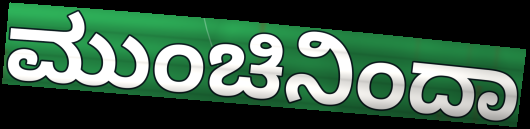
ಮುಂಚಿನಿಂದಾ